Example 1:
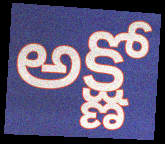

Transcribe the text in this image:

అక్ష్ణో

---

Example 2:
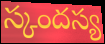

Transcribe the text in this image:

స్కందస్య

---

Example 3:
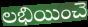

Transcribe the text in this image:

లభియించె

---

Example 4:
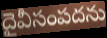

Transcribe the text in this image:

దైవీసంపదను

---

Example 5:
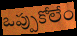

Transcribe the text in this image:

ఒప్పుకోలేం